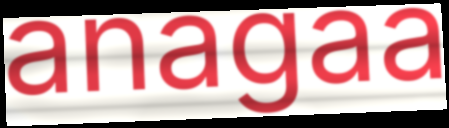
anagaa